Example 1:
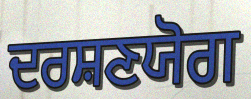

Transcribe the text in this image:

ਦਰਸ਼ਣਯੋਗ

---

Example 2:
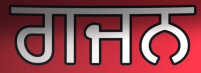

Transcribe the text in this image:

ਗਜਨ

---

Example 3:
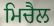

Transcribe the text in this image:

ਮਿਚੈਲ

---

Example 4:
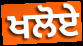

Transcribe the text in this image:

ਖਲੋਏ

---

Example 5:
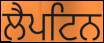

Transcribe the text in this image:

ਲੈਪਟਿਨ